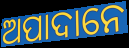
ଅପାଦାନେ